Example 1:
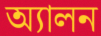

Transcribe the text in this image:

অ্যালন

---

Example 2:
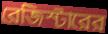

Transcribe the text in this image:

রেজিস্টারের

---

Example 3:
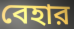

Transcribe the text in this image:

বেহার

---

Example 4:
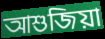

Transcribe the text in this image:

আশুজিয়া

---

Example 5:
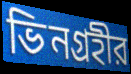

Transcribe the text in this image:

ভিনগ্রহীর